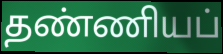
தண்ணியப்